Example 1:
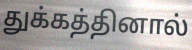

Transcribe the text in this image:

துக்கத்தினால்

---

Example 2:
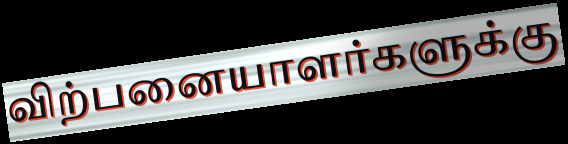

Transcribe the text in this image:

விற்பனையாளர்களுக்கு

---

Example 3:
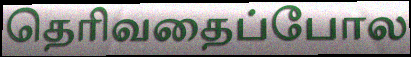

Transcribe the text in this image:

தெரிவதைப்போல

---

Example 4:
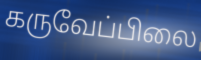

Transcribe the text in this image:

கருவேப்பிலை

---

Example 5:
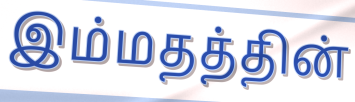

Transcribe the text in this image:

இம்மதத்தின்